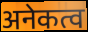
अनेकत्व